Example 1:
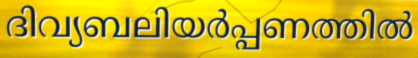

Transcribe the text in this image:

ദിവ്യബലിയർപ്പണത്തിൽ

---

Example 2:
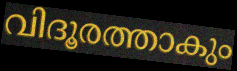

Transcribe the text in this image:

വിദൂരത്താകും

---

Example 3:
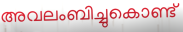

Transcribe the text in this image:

അവലംബിച്ചുകൊണ്ട്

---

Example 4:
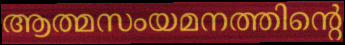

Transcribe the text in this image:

ആത്മസംയമനത്തിന്റെ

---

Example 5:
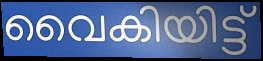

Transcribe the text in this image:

വൈകിയിട്ട്